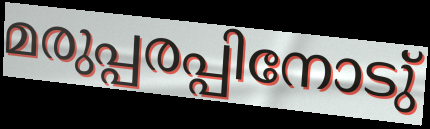
മരുപ്പരപ്പിനോടു്